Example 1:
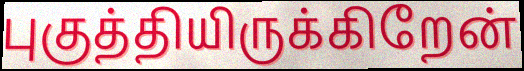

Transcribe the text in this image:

புகுத்தியிருக்கிறேன்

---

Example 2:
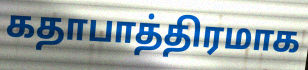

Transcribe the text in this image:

கதாபாத்திரமாக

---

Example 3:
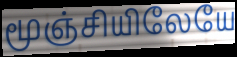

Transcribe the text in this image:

மூஞ்சியிலேயே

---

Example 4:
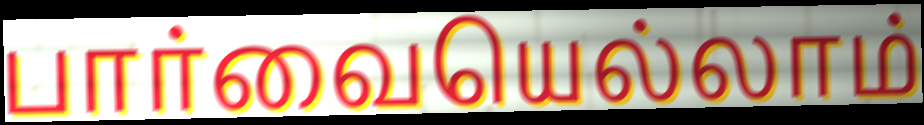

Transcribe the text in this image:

பார்வையெல்லாம்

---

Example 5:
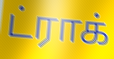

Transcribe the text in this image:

ட்ராக்